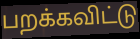
பறக்கவிட்டு